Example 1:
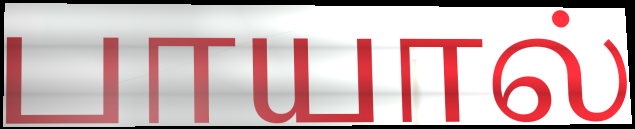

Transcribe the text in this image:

பாயால்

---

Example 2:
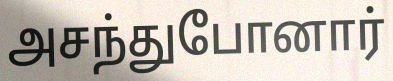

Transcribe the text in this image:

அசந்துபோனார்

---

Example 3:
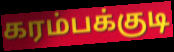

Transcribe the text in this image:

கரம்பக்குடி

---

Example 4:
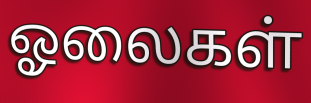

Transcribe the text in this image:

ஓலைகள்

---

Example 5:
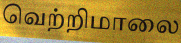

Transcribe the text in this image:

வெற்றிமாலை